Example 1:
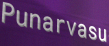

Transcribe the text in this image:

Punarvasu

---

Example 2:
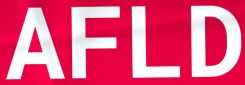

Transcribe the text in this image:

AFLD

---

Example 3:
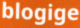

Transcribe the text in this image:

blogige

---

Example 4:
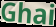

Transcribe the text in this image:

Ghai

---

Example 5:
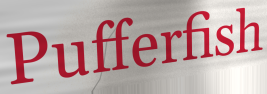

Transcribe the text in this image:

Pufferfish